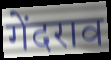
गेंदराव